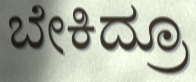
ಬೇಕಿದ್ರೂ